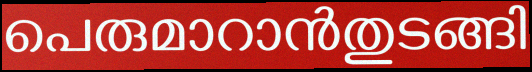
പെരുമാറാൻതുടങ്ങി